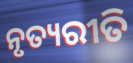
ନୃତ୍ୟରୀତି